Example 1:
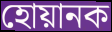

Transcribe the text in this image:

হোয়ানক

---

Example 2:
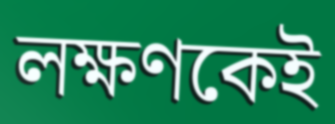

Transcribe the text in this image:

লক্ষণকেই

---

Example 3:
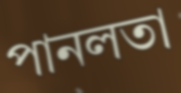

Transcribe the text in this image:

পানলতা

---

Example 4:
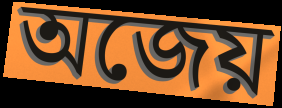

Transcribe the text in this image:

অজেয়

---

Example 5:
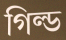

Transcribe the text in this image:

গিল্ড